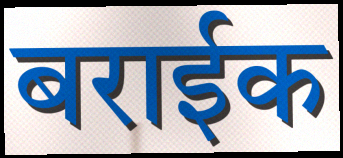
बराईक